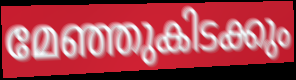
മേഞ്ഞുകിടക്കും